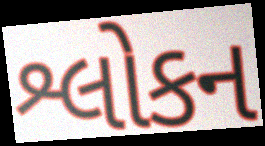
શ્લોકન